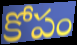
కోపం